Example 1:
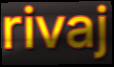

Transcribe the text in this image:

rivaj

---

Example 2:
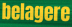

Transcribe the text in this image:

belagere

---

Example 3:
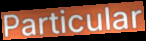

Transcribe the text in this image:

Particular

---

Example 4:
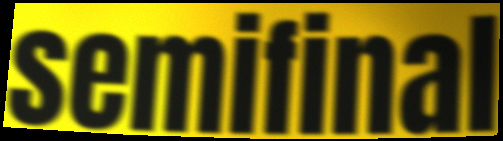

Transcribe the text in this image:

semifinal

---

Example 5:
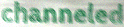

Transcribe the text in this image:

channeled